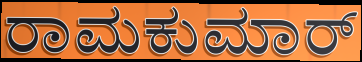
ರಾಮಕುಮಾರ್